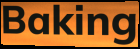
Baking